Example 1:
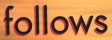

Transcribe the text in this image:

follows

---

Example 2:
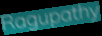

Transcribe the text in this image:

Ragupathy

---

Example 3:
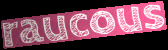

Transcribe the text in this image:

raucous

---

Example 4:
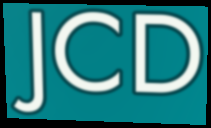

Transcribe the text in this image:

JCD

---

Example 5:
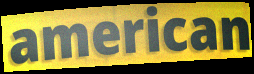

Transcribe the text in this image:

american